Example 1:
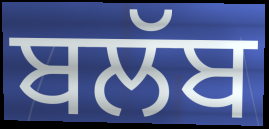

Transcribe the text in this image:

ਬਲੱਬ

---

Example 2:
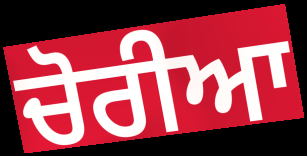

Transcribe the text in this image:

ਚੋਰੀਆ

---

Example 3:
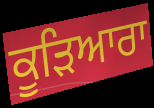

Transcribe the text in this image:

ਕੂੜਿਆਰਾ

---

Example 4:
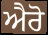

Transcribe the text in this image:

ਐਰੋ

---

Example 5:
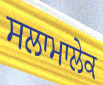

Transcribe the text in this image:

ਸਲਾਮਾਲੇਕ